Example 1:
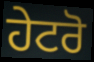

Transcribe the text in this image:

ਹੇਟਰੋ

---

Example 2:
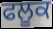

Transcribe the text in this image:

ਫਲੂਕ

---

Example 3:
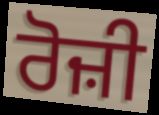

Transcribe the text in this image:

ਰੋਜ਼ੀ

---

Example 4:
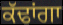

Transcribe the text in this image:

ਕੱਢਾਂਗਾ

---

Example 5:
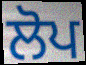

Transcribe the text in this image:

ਲੋਪ